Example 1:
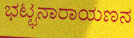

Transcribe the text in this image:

ಭಟ್ಟನಾರಾಯಣನ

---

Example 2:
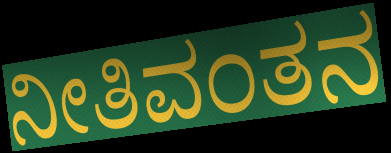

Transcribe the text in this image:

ನೀತಿವಂತನ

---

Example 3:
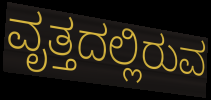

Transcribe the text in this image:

ವೃತ್ತದಲ್ಲಿರುವ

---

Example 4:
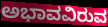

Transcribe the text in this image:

ಅಭಾವವಿರುವ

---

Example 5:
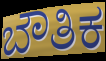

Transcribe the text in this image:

ಬೌತಿಕ